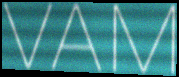
VAM